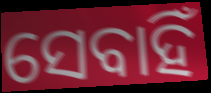
ସେବାହିଁ